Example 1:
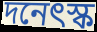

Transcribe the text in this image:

দনেৎস্ক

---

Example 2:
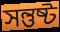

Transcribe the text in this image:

সন্তুষ্ট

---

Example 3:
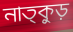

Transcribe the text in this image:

নাত্কুড়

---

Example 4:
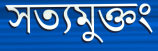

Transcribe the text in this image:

সত্যমুক্তং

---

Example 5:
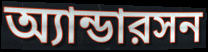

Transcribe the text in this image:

অ্যান্ডারসন